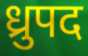
ध्रुपद